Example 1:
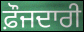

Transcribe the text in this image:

ਫ਼ੌਜਦਾਰੀ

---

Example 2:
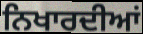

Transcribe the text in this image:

ਨਿਖਾਰਦੀਆਂ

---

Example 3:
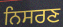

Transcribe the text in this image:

ਨਿਸਰਣ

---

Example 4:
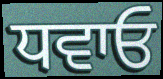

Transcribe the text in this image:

ਧਵਾਓ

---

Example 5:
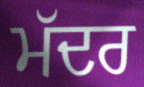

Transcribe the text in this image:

ਮੱਦਰ